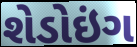
શેડોઇંગ